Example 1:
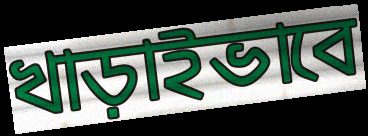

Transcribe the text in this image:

খাড়াইভাবে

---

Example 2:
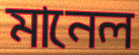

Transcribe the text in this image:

মানেল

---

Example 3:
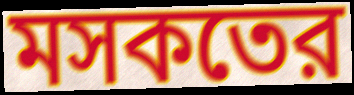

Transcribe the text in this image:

মসকতের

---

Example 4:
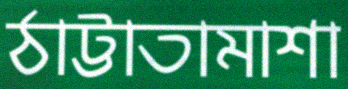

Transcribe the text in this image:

ঠাট্টাতামাশা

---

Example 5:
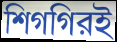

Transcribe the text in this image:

শিগগিরই